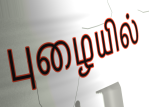
புழையில்